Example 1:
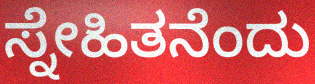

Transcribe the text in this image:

ಸ್ನೇಹಿತನೆಂದು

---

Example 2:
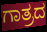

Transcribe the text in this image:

ಗಾತ್ರದ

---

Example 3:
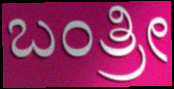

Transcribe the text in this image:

ಬಂತ್ರೀ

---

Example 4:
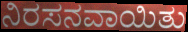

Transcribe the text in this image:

ನಿರಸನವಾಯಿತು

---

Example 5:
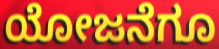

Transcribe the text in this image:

ಯೋಜನೆಗೂ